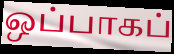
ஒப்பாகப்